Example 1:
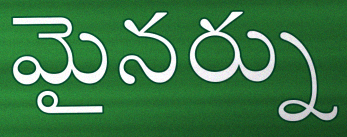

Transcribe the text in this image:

మైనర్ను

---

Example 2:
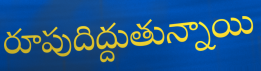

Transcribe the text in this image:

రూపుదిద్దుతున్నాయి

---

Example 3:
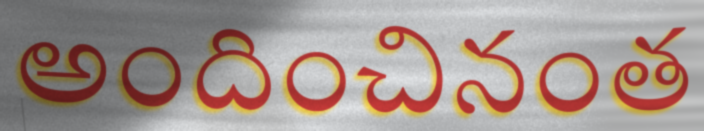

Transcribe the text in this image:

అందించినంత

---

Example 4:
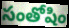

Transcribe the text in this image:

సంతోషిం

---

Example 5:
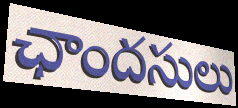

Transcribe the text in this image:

ఛాందసులు